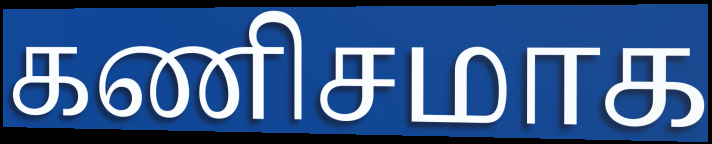
கணிசமாக